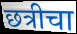
छत्रीचा